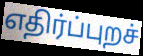
எதிர்ப்புறச்